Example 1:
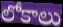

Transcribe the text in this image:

లోకాలు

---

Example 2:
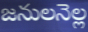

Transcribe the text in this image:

జనులనెల్ల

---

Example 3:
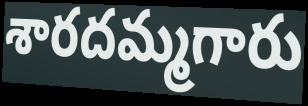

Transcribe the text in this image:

శారదమ్మగారు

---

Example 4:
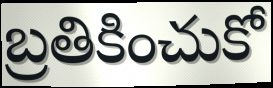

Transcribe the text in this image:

బ్రతికించుకో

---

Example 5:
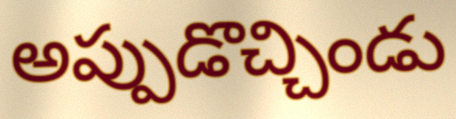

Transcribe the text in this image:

అప్పుడొచ్చిండు